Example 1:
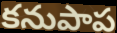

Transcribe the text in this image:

కనుపాప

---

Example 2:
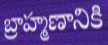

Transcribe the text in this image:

బ్రాహ్మణానికి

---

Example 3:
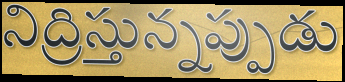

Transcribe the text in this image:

నిద్రిస్తున్నప్పుడు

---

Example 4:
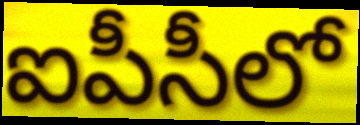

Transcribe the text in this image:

ఐపీసీలో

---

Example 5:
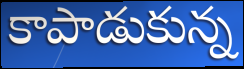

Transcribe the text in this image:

కాపాడుకున్న